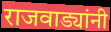
राजवाड्यांनी